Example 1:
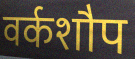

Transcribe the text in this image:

वर्कशौप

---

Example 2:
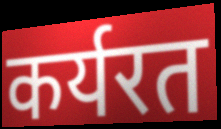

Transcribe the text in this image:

कर्यरत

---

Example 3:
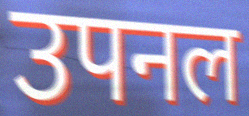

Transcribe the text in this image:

उपनल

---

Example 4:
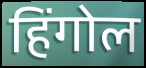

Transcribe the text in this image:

हिंगोल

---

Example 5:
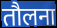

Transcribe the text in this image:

तौलना